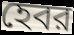
হেবর